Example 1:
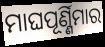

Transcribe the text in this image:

ମାଘପୂର୍ଣ୍ଣିମାର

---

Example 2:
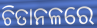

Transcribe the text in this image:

ଚିତାନଳରେ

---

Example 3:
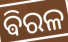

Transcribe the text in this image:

ଵିରଳ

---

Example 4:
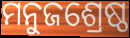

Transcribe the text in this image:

ମନୁଜଶ୍ରେଷ୍ଠ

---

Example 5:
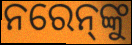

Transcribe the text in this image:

ନରେନ୍‌ଙ୍କୁ